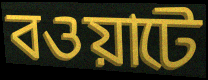
বওয়াটে